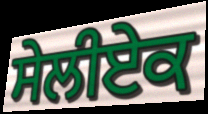
ਸੇਲੀਏਕ